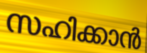
സഹിക്കാൻ